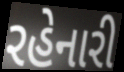
રહેનારી